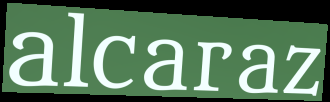
alcaraz